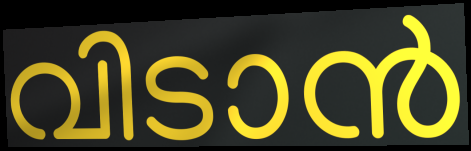
വിടാൻ